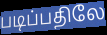
படிப்பதிலே